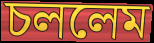
চললেম